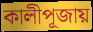
কালীপূজায়